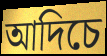
আদিচে